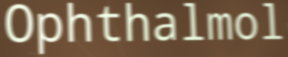
Ophthalmol